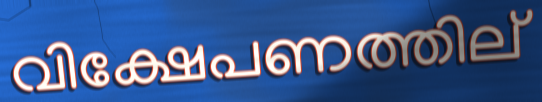
വിക്ഷേപണത്തില്